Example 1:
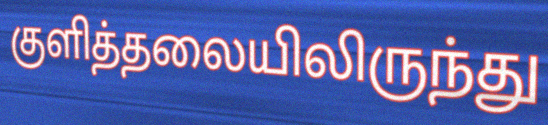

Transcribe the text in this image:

குளித்தலையிலிருந்து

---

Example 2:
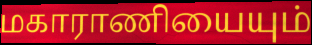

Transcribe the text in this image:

மகாராணியையும்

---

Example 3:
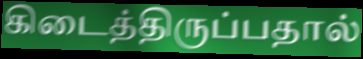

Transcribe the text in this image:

கிடைத்திருப்பதால்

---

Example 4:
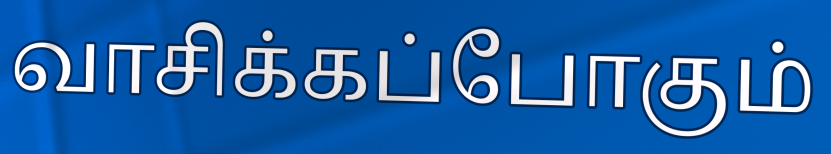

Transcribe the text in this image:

வாசிக்கப்போகும்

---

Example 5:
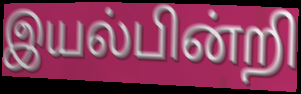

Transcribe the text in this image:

இயல்பின்றி